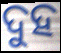
ଦୁହ